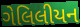
ગેલિલીયન